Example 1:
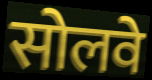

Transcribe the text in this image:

सोलवे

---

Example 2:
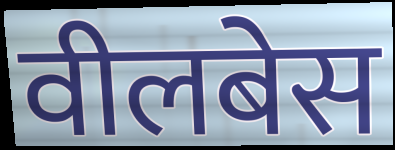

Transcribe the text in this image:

वीलबेस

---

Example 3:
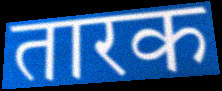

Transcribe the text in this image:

तारक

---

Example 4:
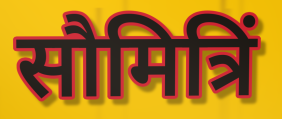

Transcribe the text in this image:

सौमित्रिं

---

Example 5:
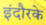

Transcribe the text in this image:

इंदौरके